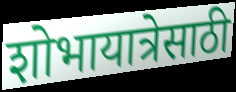
शोभायात्रेसाठी